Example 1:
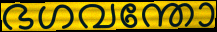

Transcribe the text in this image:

ഭഗവന്തോ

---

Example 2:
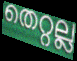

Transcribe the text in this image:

തെറ്റല്ല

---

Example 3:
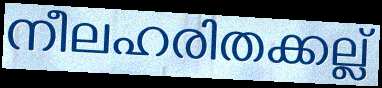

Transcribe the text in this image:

നീലഹരിതക്കല്ല്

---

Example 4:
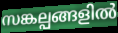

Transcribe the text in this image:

സങ്കല്പങ്ങളിൽ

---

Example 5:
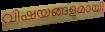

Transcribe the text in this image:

വിഷയങ്ങളുമായി